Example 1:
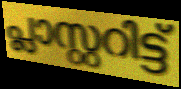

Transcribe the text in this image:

പ്ലാസ്റ്ററിട്ട്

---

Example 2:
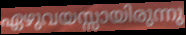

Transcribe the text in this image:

ഏഴുവയസ്സായിരുന്നു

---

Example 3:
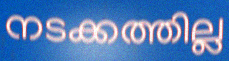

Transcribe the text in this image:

നടക്കത്തില്ല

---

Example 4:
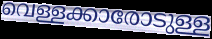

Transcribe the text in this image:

വെള്ളക്കാരോടുള്ള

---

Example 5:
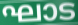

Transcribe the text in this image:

ഘാട